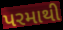
પરમાથી